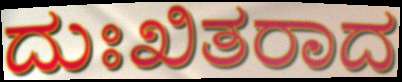
ದುಃಖಿತರಾದ